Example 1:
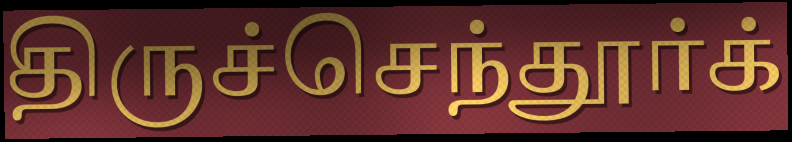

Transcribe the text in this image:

திருச்செந்தூர்க்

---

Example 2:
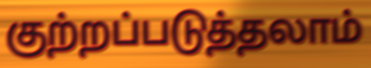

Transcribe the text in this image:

குற்றப்படுத்தலாம்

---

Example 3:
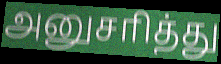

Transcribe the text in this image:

அனுசரித்து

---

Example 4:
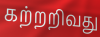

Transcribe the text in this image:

கற்றறிவது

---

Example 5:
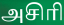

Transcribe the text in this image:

அசிரி